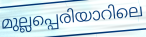
മുല്ലപ്പെരിയാറിലെ